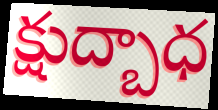
క్షుద్బాధ